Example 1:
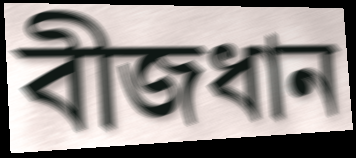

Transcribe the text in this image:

বীজধান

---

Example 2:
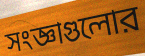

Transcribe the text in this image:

সংজ্ঞাগুলোর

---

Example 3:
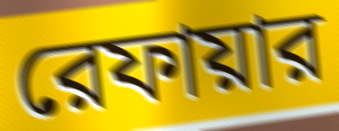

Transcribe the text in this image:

রেফায়ার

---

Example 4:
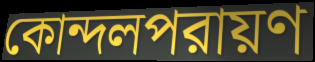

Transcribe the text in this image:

কোন্দলপরায়ণ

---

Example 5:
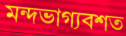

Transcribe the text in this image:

মন্দভাগ্যবশত